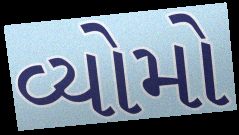
વ્યોમો